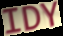
IDY